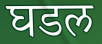
घडल